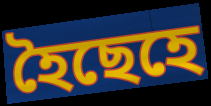
হৈছেহে